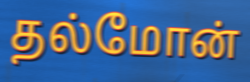
தல்மோன்